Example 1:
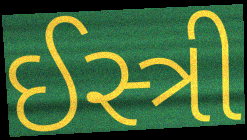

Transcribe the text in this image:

ઈસ્ત્રી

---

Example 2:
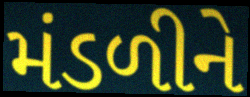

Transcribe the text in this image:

મંડળીને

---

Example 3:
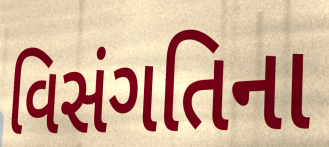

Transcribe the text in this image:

વિસંગતિના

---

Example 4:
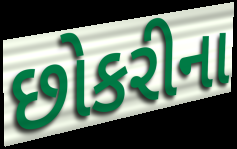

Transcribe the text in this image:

છોકરીના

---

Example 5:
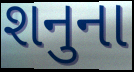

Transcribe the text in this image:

શનુના